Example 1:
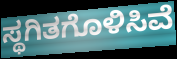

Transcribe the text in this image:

ಸ್ಥಗಿತಗೊಳಿಸಿವೆ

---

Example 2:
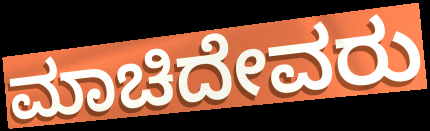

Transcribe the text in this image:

ಮಾಚಿದೇವರು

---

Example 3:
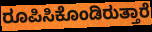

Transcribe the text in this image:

ರೂಪಿಸಿಕೊಂಡಿರುತ್ತಾರೆ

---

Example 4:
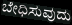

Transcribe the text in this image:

ಬೇಧಿಸುವುದು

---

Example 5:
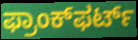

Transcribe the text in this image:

ಫ್ರಾಂಕ್‌ಫರ್ಟ್